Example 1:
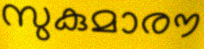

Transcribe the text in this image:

സുകുമാരൗ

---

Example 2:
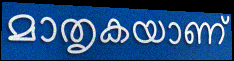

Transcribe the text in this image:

മാതൃകയാണ്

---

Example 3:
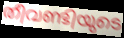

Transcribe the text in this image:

തീവണ്ടിയുടെ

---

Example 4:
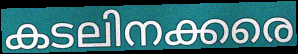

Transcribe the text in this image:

കടലിനക്കരെ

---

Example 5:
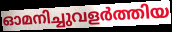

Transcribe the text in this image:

ഓമനിച്ചുവളർത്തിയ